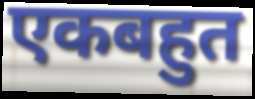
एकबहुत